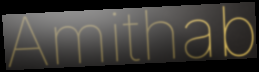
Amithab